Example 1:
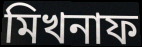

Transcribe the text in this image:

মিখনাফ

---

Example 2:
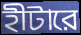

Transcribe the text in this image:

হীটারে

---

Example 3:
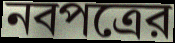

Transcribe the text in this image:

নবপত্রের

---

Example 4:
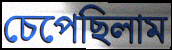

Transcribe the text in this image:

চেপেছিলাম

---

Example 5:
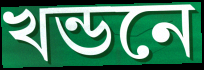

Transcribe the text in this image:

খন্ডনে